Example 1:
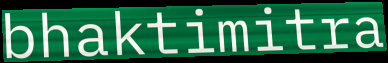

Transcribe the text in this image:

bhaktimitra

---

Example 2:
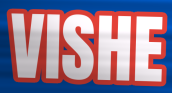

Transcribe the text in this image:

VISHE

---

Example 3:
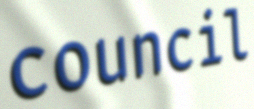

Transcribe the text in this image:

council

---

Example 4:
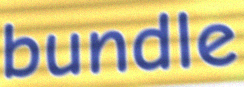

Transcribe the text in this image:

bundle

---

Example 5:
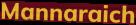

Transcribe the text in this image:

Mannaraich